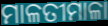
ମାଳତୀମାଳା